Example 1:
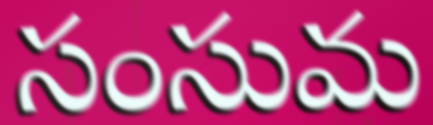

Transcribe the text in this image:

సంసుమ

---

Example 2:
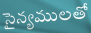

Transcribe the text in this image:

సైన్యములతో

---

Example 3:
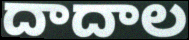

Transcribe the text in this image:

దాదాల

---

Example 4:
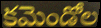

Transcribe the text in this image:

కమెండోల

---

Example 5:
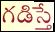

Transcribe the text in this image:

గడిస్తే